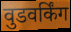
वुडवर्किंग